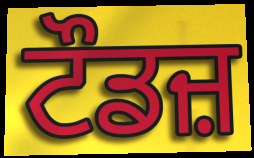
ਟੌਡਜ਼